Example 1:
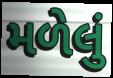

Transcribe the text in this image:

મળેલું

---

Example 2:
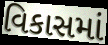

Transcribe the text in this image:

વિકાસમાં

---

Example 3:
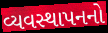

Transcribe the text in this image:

વ્યવસ્થાપનનો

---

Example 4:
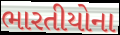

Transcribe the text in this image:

ભારતીયોના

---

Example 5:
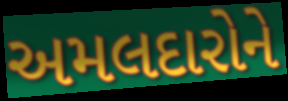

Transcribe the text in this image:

અમલદારોને